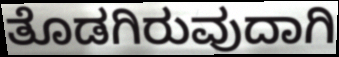
ತೊಡಗಿರುವುದಾಗಿ